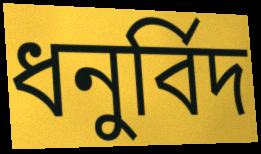
ধনুৰ্বিদ